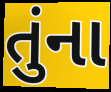
તુંના